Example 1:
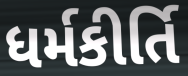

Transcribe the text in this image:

ધર્મકીર્તિ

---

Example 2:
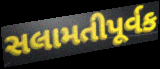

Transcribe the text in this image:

સલામતીપૂર્વક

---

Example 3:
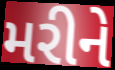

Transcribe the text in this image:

મરીને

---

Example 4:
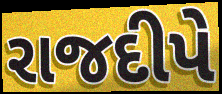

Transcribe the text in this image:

રાજદીપે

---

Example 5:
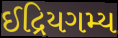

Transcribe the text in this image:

ઈદ્રિયગમ્ય